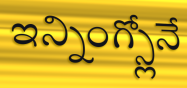
ఇన్నింగ్స్లోనే